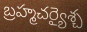
బ్రహ్మచర్యైశ్చ